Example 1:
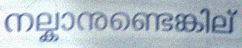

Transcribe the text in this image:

നല്കാനുണ്ടെങ്കില്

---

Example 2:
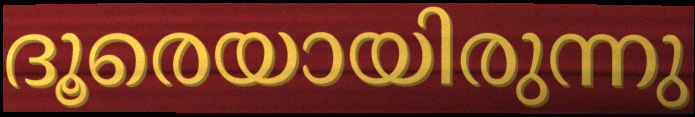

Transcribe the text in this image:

ദൂരെയായിരുന്നു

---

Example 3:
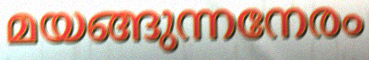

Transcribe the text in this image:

മയങ്ങുന്നനേരം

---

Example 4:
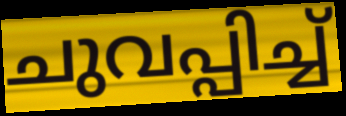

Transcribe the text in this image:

ചുവപ്പിച്ച്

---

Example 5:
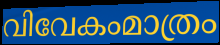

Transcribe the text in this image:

വിവേകംമാത്രം